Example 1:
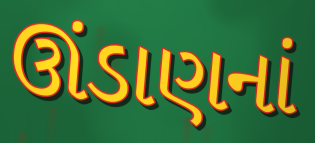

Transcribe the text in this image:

ઊંડાણનાં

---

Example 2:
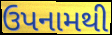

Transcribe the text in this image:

ઉપનામથી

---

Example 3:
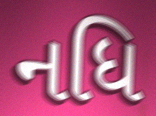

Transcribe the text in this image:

નધિ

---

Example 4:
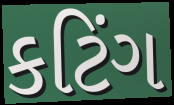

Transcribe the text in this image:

કટિંગ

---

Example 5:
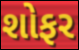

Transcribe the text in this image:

શોફર